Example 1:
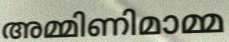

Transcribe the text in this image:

അമ്മിണിമാമ്മ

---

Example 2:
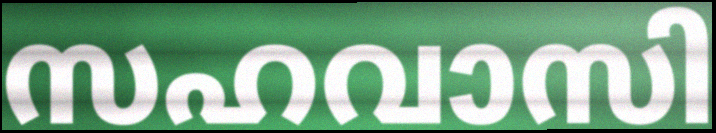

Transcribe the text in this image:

സഹവാസി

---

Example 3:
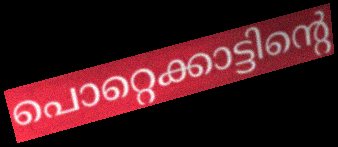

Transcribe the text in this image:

പൊറ്റെക്കാട്ടിന്റെ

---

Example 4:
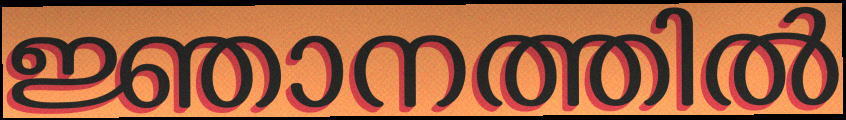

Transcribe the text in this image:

ജ്ഞാനത്തിൽ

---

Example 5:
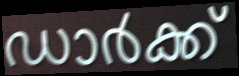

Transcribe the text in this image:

ഡാർക്ക്